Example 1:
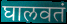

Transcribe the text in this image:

घालवतं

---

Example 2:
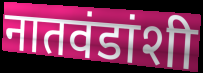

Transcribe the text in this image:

नातवंडांशी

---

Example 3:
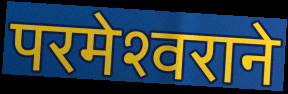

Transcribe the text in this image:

परमेश्वराने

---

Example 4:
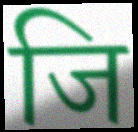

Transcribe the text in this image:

जि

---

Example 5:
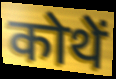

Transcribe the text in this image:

कोथें